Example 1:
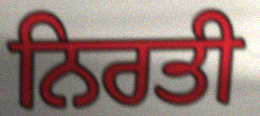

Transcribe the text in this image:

ਨਿਰਤੀ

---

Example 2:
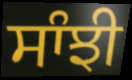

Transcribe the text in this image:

ਸਾੰਝੀ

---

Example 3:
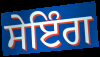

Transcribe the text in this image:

ਸੇਇੰਗ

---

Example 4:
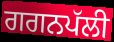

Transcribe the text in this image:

ਗਗਨਪੱਲੀ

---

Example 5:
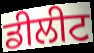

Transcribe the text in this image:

ਡੀਲੀਟ